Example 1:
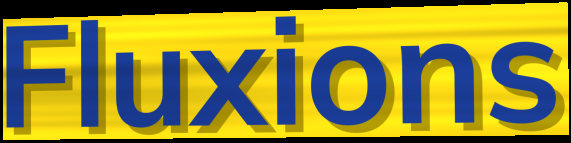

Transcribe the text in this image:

Fluxions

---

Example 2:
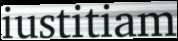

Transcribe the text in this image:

iustitiam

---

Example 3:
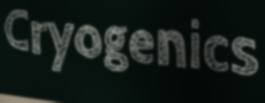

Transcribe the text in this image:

Cryogenics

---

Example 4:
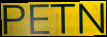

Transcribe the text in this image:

PETN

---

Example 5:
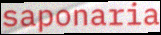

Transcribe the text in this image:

saponaria